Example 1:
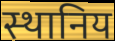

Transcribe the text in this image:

स्थानिय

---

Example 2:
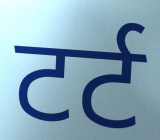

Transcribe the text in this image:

टर्ट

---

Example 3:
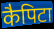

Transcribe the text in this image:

कैपिटा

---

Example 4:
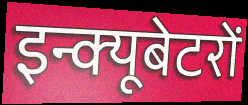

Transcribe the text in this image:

इन्क्यूबेटरों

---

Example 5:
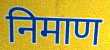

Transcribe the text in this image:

निमाण